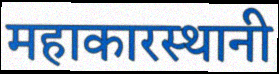
महाकारस्थानी